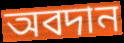
অবদান